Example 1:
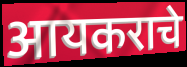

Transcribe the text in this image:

आयकराचे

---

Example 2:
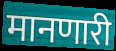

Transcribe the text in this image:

मानणारी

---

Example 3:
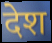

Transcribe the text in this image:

देश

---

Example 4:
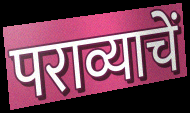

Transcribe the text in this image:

पराव्याचें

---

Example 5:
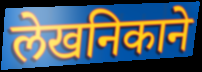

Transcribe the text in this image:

लेखनिकाने